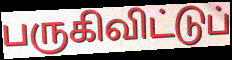
பருகிவிட்டுப்